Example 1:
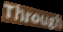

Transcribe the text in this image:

Through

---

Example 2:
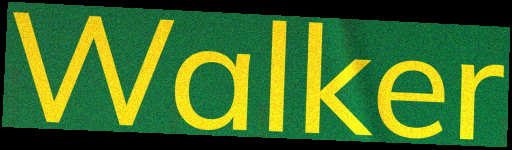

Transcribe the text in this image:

Walker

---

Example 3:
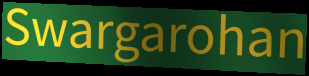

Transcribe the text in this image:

Swargarohan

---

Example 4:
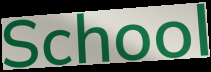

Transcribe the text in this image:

School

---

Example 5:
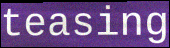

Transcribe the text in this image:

teasing